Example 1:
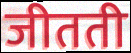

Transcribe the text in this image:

जीतती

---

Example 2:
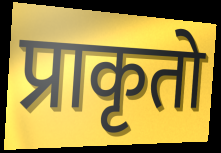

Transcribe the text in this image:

प्राकृतो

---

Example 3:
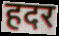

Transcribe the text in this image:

हदर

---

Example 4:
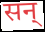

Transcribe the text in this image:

सन्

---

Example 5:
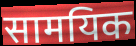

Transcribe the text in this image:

सामयिक